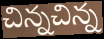
చిన్నచిన్న